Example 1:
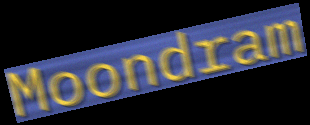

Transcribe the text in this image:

Moondram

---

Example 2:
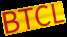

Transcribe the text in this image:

BTCL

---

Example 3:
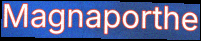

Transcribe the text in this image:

Magnaporthe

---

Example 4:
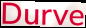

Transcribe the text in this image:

Durve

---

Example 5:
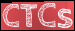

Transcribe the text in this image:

CTCs